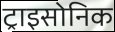
ट्राइसोनिक